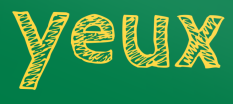
yeux